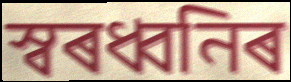
স্বৰধ্বনিৰ